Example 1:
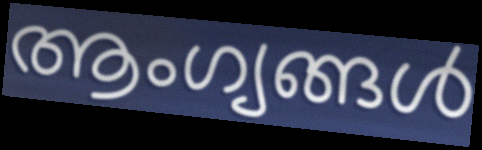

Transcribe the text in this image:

ആംഗ്യങ്ങൾ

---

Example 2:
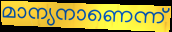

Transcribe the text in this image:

മാന്യനാണെന്ന്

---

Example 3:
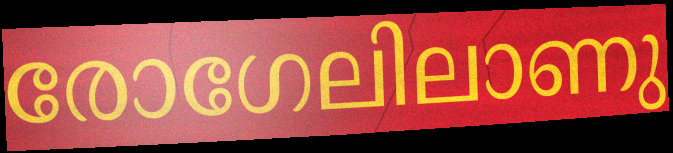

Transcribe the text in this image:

രോഗേലിലാണു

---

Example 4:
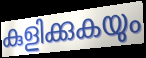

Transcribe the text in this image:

കുളിക്കുകയും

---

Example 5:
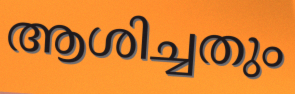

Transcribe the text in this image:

ആശിച്ചതും